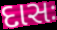
દાસઃ